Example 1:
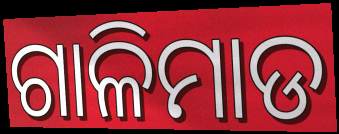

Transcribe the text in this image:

ଗାଳିମାଡ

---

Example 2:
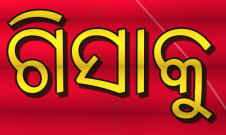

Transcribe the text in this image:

ଗିସାକୁ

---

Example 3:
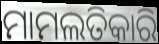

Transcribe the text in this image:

ମାମଲତିକାରି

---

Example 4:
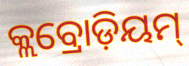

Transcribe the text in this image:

କ୍ଲବ୍ରୋଡ଼ିୟମ୍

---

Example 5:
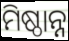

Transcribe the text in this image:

ମିଷ୍ଠାନ୍ନ